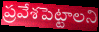
ప్రవేశపెట్టాలని